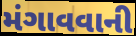
મંગાવવાની